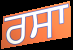
ਰਸਾ